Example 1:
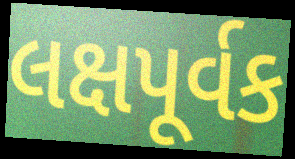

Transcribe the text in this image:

લક્ષપૂર્વક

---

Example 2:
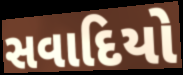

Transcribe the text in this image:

સવાદિયો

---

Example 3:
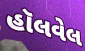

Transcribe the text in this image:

હૉલવેલ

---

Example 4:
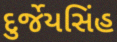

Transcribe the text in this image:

દુર્જેયસિંહ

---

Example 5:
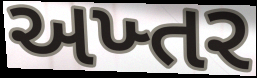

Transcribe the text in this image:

અખ્તર